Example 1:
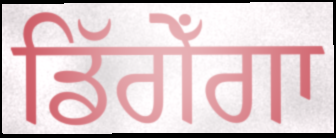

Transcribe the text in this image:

ਡਿੱਗੇਁਗਾ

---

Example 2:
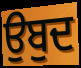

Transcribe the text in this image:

ਉਬੁਦ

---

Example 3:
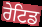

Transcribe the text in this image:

ਰੇਟਿਡ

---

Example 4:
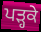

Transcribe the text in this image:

ਪੜ੍ਹਕੇ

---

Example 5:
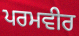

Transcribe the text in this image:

ਪਰਮਵੀਰ